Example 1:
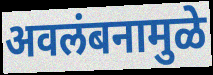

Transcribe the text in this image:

अवलंबनामुळे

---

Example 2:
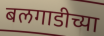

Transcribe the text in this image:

बलगाडीच्या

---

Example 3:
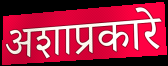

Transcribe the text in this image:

अशाप्रकारे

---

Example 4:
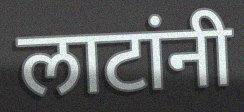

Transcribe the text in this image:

लाटांनी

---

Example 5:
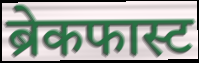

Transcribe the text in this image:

ब्रेकफास्ट